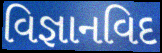
વિજ્ઞાનવિદ